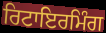
ਰਿਟਾਇਰਮਿੰਗ